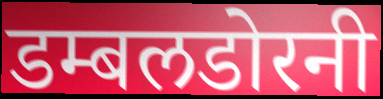
डम्बलडोरनी